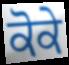
ਕੋਕੇ